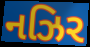
નઝિર